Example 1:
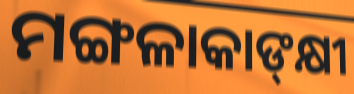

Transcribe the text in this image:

ମଙ୍ଗଳାକାଙ୍‍କ୍ଷୀ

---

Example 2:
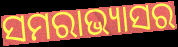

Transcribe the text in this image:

ସମରାଭ୍ୟାସର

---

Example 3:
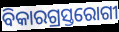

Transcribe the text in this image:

ବିକାରଗ୍ରସ୍ତରୋଗୀ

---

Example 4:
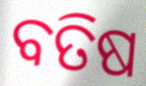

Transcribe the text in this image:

ବତିଷ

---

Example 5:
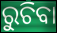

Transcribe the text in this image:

ରୁଚିବା